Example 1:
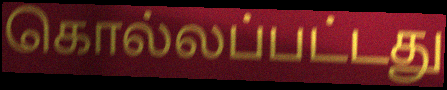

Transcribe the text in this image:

கொல்லப்பட்டது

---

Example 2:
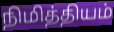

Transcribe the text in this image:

நிமித்தியம்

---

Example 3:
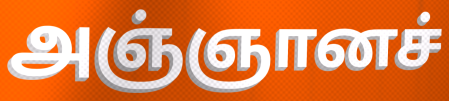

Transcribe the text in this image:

அஞ்ஞானச்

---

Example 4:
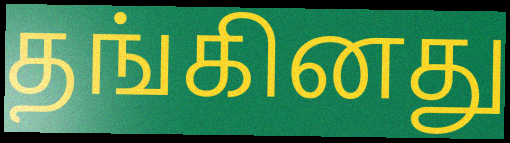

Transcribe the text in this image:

தங்கினது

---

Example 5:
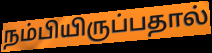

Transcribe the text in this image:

நம்பியிருப்பதால்